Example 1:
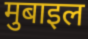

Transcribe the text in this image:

मुबाइल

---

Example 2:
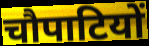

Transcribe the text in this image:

चौपाटियों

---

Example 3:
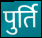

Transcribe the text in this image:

पुर्ति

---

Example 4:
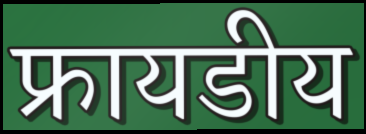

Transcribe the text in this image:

फ्रायडीय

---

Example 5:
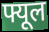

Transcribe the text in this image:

फ्यूल